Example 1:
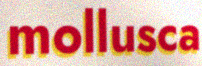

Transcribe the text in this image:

mollusca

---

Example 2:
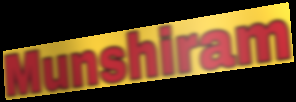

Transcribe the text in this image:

Munshiram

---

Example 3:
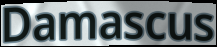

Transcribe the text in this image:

Damascus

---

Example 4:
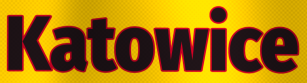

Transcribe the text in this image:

Katowice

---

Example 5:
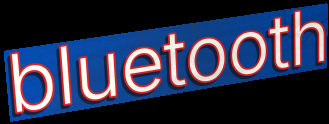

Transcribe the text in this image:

bluetooth